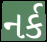
નર્ક